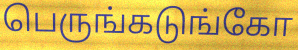
பெருங்கடுங்கோ